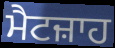
ਮੈਟਜ਼ਾਹ